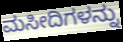
ಮಸೀದಿಗಳನ್ನು